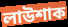
লাউশাক